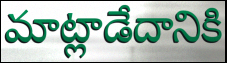
మాట్లాడేదానికి